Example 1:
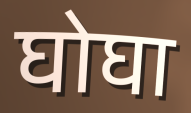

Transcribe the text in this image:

घोघा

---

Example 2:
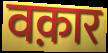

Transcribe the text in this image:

वक़ार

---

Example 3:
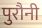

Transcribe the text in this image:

पुरौनी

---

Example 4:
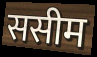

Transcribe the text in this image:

ससीम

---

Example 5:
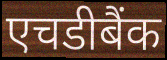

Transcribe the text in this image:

एचडीबैंक